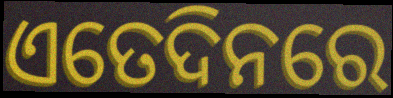
ଏତେଦିନରେ